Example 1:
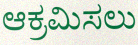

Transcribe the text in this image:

ಆಕ್ರಮಿಸಲು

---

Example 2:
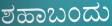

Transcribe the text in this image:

ಶಹಾಬಂದು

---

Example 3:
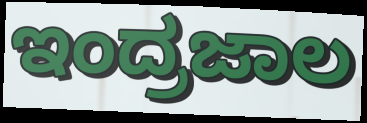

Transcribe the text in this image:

ಇಂದ್ರಜಾಲ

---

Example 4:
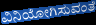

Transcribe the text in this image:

ವಿನಿಯೋಗಿಸುವಂತೆ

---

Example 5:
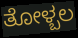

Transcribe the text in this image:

ತೋಳ್ಬಲ